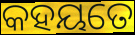
କହୟତେ